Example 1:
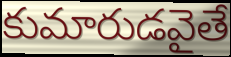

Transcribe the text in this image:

కుమారుడవైతే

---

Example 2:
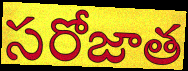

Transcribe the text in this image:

సరోజాత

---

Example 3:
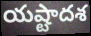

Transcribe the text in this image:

యష్టాదశ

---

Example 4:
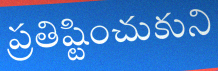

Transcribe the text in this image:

ప్రతిష్టించుకుని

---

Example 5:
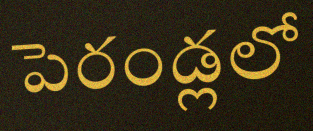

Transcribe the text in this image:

పెరండ్లలో